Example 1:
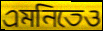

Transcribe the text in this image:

এমনিতেও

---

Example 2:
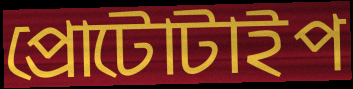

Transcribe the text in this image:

প্রোটোটাইপ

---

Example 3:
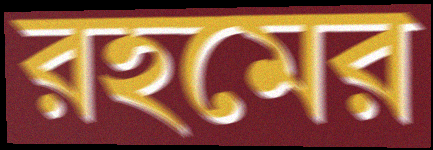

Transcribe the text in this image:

রহমের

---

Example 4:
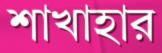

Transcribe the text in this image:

শাখাহার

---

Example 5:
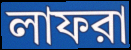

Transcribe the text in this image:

লাফরা